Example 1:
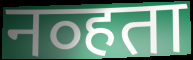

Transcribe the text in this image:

नव्हता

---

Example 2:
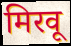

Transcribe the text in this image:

मिरवू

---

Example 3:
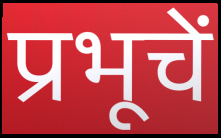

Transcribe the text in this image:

प्रभूचें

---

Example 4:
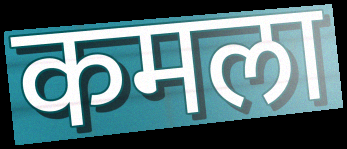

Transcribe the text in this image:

कमला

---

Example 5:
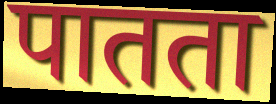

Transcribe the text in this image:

पातता